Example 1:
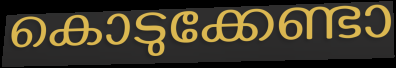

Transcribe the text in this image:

കൊടുക്കേണ്ടാ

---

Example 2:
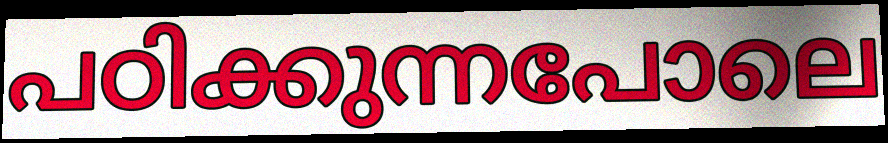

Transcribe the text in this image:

പഠിക്കുന്നപോലെ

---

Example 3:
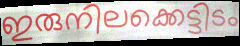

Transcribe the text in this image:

ഇരുനിലക്കെട്ടിടം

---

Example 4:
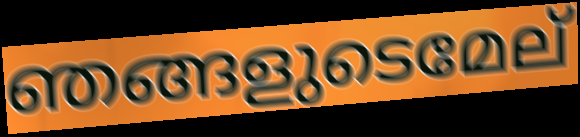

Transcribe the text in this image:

ഞങ്ങളുടെമേല്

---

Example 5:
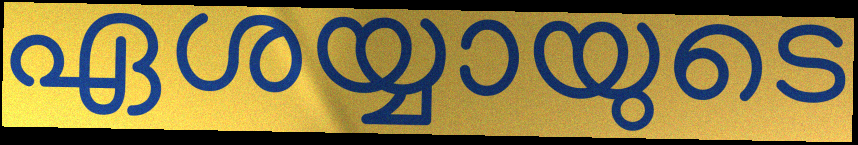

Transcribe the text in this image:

ഏശയ്യായുടെ